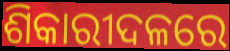
ଶିକାରୀଦଳରେ